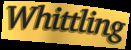
Whittling